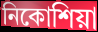
নিকোশিয়া